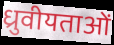
ध्रुवीयताओं